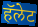
हॅलेट